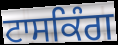
ਟਾਸਕਿੰਗ